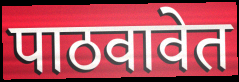
पाठवावेत